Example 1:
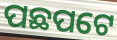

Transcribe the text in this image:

ପଛପଟେ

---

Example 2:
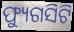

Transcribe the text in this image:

ଫ୍ୟୁଗସିଟି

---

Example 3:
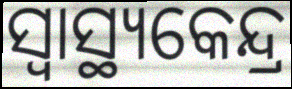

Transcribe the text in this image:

ସ୍ବାସ୍ଥ୍ୟକେନ୍ଦ୍ର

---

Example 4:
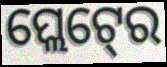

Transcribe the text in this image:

ପ୍ଲେଟ୍‍ରେ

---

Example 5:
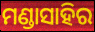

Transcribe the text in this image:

ମଣ୍ଡାସାହିର